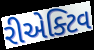
રીએક્ટિવ